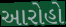
આરોહો